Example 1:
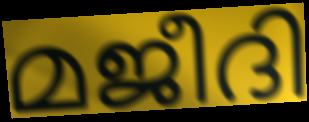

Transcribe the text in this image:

മജീദി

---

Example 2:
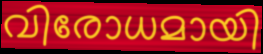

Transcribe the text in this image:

വിരോധമായി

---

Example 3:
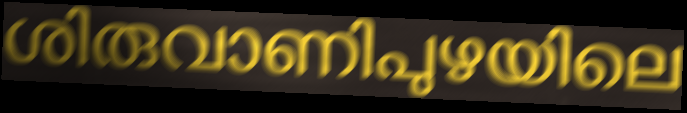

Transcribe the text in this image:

ശിരുവാണിപുഴയിലെ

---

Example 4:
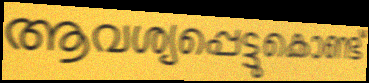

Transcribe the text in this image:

ആവശ്യപ്പെട്ടുകൊണ്ട്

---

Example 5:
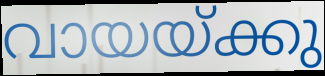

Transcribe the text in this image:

വായയ്ക്കു